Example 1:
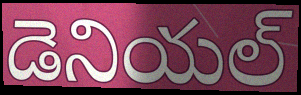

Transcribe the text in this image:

డెనియల్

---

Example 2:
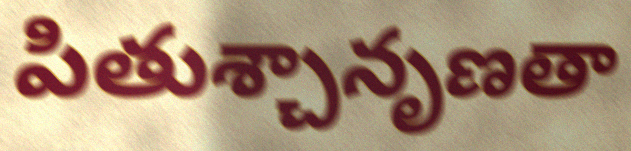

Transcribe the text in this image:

పితుశ్చానృణతా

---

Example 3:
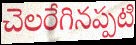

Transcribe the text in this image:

చెలరేగినప్పటి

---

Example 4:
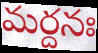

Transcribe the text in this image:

మర్దనః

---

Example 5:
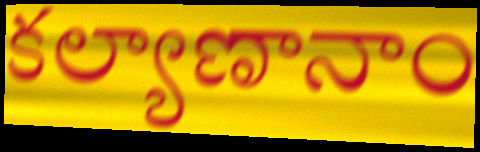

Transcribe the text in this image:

కల్యాణానాం